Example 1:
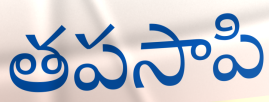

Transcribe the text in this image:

తపసాపి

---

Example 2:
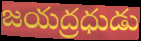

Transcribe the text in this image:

జయద్రధుడు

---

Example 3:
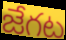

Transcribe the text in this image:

జేగట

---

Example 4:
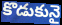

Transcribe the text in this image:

కొడుకునై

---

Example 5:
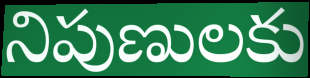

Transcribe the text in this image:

నిపుణులకు